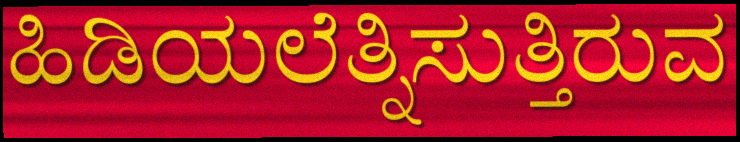
ಹಿಡಿಯಲೆತ್ನಿಸುತ್ತಿರುವ